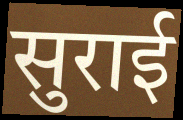
सुराई